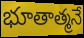
భూతాత్మనే